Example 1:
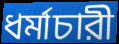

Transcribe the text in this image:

ধর্মাচারী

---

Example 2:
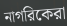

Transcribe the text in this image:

নাগরিকেরা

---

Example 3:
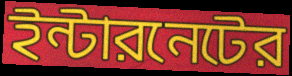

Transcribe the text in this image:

ইন্টারনেটের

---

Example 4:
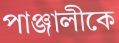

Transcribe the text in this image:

পাঞ্জালীকে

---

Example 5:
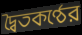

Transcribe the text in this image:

দ্বৈতকণ্ঠের